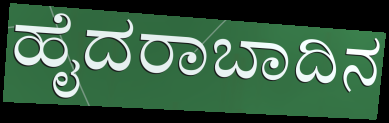
ಹೈದರಾಬಾದಿನ